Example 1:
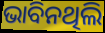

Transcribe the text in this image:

ଭାବିନଥିଲି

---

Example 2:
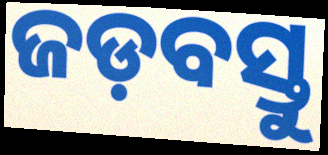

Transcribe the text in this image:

ଜଡ଼ବସ୍ତୁ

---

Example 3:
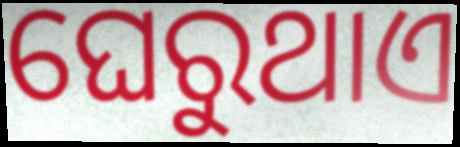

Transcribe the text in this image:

ଘେରୁଥାଏ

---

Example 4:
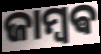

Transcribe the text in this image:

ଜାମ୍ବଵ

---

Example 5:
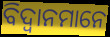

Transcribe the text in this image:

ବିଦ୍ଵାନମାନେ